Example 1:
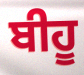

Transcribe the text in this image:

ਬੀਹੂ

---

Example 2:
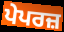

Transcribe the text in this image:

ਪੇਪਰਜ਼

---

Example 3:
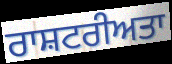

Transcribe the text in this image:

ਰਾਸ਼ਟਰੀਅਤਾ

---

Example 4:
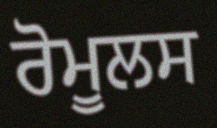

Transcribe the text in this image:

ਰੋਮੂਲਸ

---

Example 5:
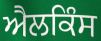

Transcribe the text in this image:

ਐਲਕਿੰਸ